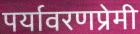
पर्यावरणप्रेमी